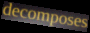
decomposes